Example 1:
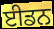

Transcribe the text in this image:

ਈਡਨ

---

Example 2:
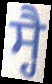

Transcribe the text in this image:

ਸ੍ਹੈ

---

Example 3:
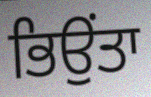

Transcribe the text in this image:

ਭਿਉਂਤਾ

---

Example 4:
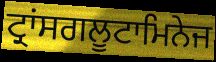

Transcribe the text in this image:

ਟ੍ਰਾਂਸਗਲੂਟਾਮਿਨੇਜ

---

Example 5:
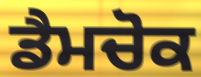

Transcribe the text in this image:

ਡੈਮਚੋਕ